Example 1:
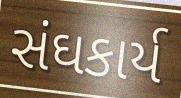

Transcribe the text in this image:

સંઘકાર્ય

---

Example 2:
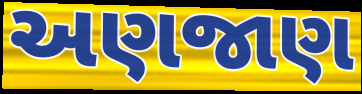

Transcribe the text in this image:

અણજાણ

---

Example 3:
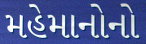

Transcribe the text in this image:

મહેમાનોનો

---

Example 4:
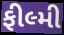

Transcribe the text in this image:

ફીલ્મી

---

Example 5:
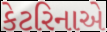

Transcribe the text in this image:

કેટરિનાએ